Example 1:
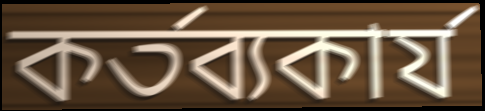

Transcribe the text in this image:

কর্তব্যকার্য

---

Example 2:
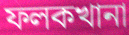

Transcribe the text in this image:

ফলকখানা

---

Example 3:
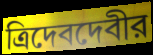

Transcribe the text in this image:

ত্রিদেবদেবীর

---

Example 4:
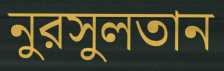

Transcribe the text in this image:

নুরসুলতান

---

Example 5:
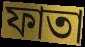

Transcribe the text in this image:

ফাতা